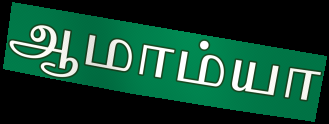
ஆமாம்யா